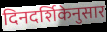
दिनदर्शिकेनुसार